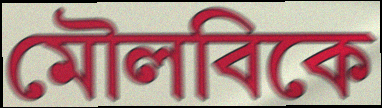
মৌলবিকে